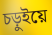
চড়ুইয়ে